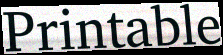
Printable